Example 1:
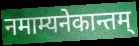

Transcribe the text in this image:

नमाम्यनेकान्तम्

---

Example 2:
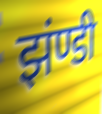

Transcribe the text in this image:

झंण्डी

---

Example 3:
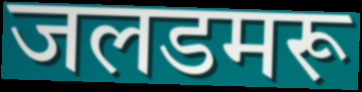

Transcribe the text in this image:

जलडमरू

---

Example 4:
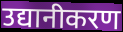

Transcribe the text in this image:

उद्यानीकरण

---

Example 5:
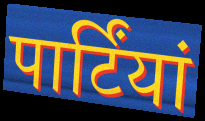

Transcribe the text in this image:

पार्टिंयां